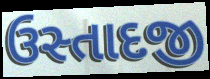
ઉસ્તાદજી